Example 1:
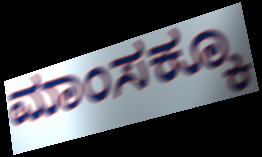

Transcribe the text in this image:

ಮಾಂಸಕ್ಕೂ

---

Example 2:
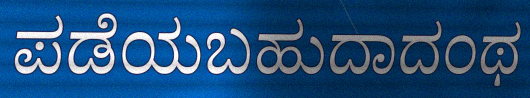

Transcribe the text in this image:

ಪಡೆಯಬಹುದಾದಂಥ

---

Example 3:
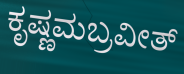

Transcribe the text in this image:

ಕೃಷ್ಣಮಬ್ರವೀತ್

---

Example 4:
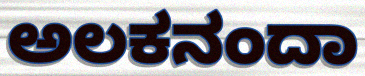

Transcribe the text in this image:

ಅಲಕನಂದಾ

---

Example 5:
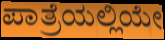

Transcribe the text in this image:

ಪಾತ್ರೆಯಲ್ಲಿಯೇ